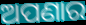
ଅପଣାର